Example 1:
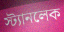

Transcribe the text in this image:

স্ট্যানলেক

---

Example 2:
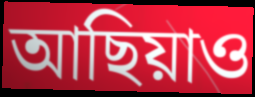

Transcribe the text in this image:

আছিয়াও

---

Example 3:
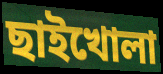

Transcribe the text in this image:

ছাইখোলা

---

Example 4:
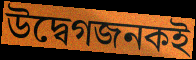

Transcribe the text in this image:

উদ্বেগজনকই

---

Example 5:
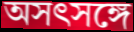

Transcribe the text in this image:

অসৎসঙ্গে